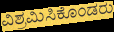
ವಿಶ್ರಮಿಸಿಕೊಂಡರು